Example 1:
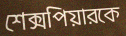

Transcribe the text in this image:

শেক্সপিয়ারকে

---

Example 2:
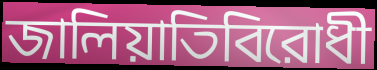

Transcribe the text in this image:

জালিয়াতিবিরোধী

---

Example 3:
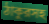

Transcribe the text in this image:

ঠাকুরসহ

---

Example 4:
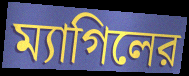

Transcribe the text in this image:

ম্যাগিলের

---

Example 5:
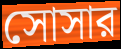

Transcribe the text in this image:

সোসার